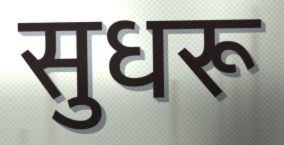
सुधरू